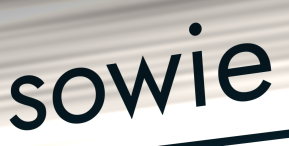
sowie